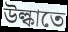
উল্কাতে